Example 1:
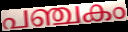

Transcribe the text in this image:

പഞ്ചകം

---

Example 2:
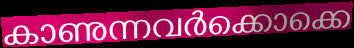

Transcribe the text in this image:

കാണുന്നവർക്കൊക്കെ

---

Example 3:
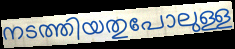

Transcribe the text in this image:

നടത്തിയതുപോലുള്ള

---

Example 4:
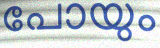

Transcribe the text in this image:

പോയും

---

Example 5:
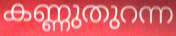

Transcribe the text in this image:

കണ്ണുതുറന്ന